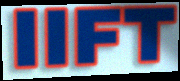
IIFT